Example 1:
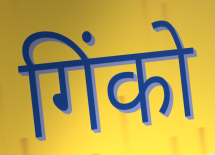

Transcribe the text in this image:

गिंको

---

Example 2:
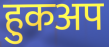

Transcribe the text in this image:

हुकअप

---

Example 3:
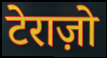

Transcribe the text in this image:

टेराज़ो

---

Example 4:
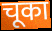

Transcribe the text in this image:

चूका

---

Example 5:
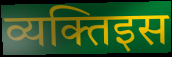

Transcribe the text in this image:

व्यक्तिइस